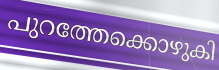
പുറത്തേക്കൊഴുകി